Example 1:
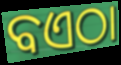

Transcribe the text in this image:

ବଏଠା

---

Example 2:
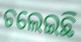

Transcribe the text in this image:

ଚଲେଇଛି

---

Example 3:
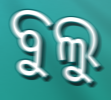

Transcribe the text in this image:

ବୁଲୁ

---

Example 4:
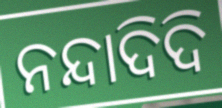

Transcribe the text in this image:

ନନ୍ଦାଦିଦି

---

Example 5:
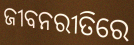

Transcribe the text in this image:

ଜୀବନରୀତିରେ